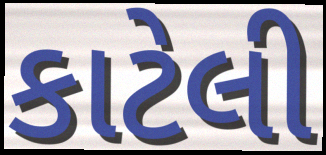
કાટેલી